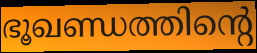
ഭൂഖണ്ഡത്തിന്റെ